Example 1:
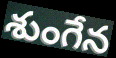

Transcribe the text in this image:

శుంగేన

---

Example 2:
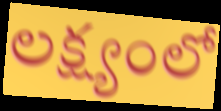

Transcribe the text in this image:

లక్ష్యంలో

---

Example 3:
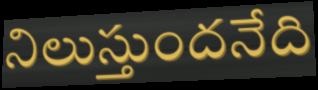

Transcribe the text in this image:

నిలుస్తుందనేది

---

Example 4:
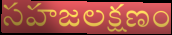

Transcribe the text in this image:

సహజలక్షణం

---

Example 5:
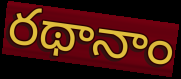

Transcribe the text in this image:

రథానాం